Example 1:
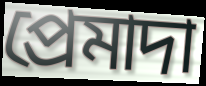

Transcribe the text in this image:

প্ৰেমাদা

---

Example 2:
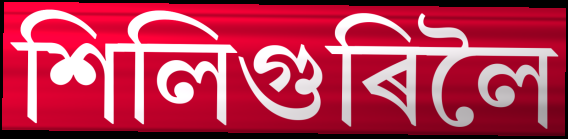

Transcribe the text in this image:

শিলিগুৰিলৈ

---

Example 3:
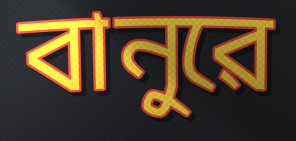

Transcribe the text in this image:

বানুৱে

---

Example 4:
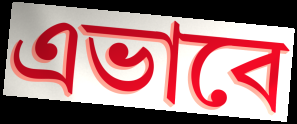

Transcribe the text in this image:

এভাবে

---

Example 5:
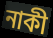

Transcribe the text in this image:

নাকী